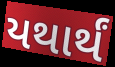
યથાર્થં